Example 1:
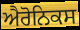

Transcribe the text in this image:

ਐਰੋਨਿਕਸ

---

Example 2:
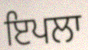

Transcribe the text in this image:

ਇਪਲਾ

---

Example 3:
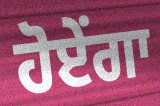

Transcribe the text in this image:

ਹੋਏਂਗਾ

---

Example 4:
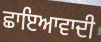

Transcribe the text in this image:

ਛਾਇਆਵਾਦੀ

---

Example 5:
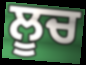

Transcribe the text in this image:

ਲੂਚ